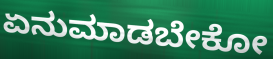
ಏನುಮಾಡಬೇಕೋ